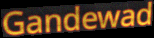
Gandewad